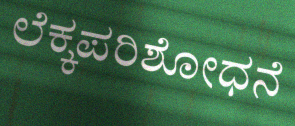
ಲೆಕ್ಕಪರಿಶೋಧನೆ